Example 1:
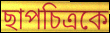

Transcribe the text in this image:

ছাপচিত্রকে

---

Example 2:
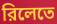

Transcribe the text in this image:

রিলেতে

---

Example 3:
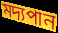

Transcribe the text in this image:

মদ্যপান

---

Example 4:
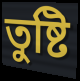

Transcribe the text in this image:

তুষ্টি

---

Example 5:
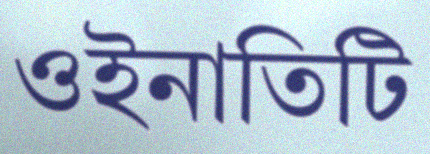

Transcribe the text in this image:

ওইনাতিটি